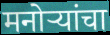
मनोर्‍यांचा